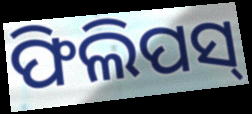
ଫିଲିପସ୍